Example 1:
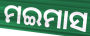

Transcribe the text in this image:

ମଇମାସ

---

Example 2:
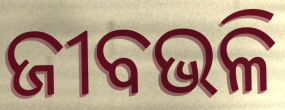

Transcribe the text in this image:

ଜୀବଭଳି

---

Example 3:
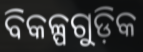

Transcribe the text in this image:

ବିକଳ୍ପଗୁଡ଼ିକ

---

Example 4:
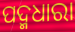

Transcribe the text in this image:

ପଦ୍ମଧାରା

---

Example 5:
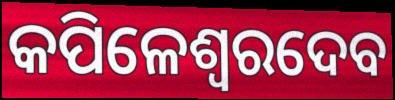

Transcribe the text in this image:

କପିଳେଶ୍ୱରଦେବ